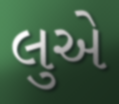
લુએ